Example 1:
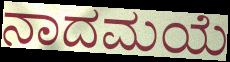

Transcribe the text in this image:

ನಾದಮಯೆ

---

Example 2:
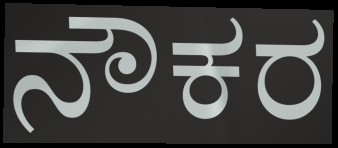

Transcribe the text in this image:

ನೌಕರ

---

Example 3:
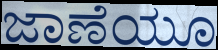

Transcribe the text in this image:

ಜಾಣೆಯೂ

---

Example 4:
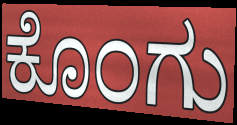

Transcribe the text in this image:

ಕೊಂಗು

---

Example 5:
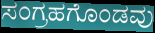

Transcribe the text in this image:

ಸಂಗ್ರಹಗೊಂಡವು